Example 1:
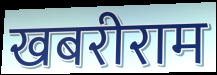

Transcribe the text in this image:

खबरीराम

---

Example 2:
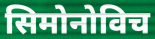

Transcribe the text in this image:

सिमोनोविच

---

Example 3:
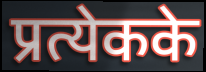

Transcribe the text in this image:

प्रत्येकके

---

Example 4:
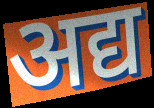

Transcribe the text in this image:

अद्य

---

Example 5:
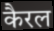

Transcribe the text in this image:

कैरल